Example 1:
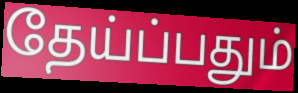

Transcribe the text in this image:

தேய்ப்பதும்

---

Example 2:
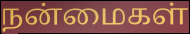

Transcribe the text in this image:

நன்மைகள்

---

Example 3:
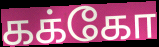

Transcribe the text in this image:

கக்கோ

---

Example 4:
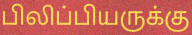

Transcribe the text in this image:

பிலிப்பியருக்கு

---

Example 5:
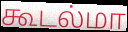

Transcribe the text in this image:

கூடல்மா